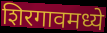
शिरगावमध्ये